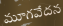
మూగవేదన